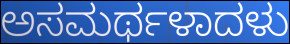
ಅಸಮರ್ಥಳಾದಳು